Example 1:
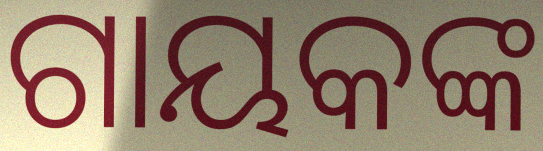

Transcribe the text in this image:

ଗାୟକଙ୍କ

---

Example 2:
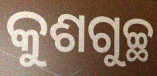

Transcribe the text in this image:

କୁଶଗୁଚ୍ଛ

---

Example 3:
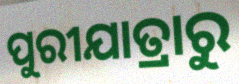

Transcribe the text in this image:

ପୁରୀଯାତ୍ରାରୁ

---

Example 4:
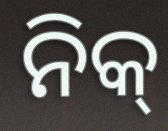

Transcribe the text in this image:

ନିକ୍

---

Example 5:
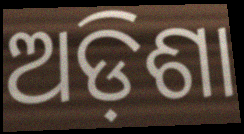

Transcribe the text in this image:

ଅଡ଼ିଶା